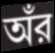
অঁর